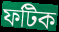
ফটিক